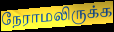
நேராமலிருக்க